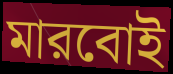
মারবোই